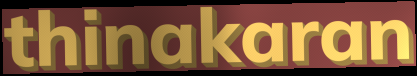
thinakaran